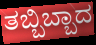
ತಬ್ಬಿಬ್ಬಾದ